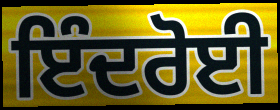
ਇੰਦਰੋਈ